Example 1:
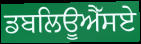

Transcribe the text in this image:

ਡਬਲਿਊਐੱਸਏ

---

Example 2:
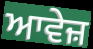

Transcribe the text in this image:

ਆਵੇਜ਼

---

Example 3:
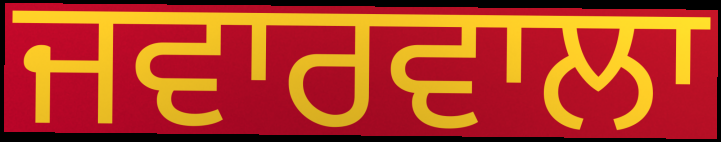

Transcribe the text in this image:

ਜਵਾਰਵਾਲਾ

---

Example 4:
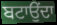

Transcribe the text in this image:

ਬਟਾਉਂਦਾ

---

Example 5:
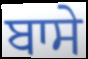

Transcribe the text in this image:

ਬਾਸੇ